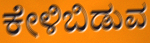
ಕೇಳಿಬಿಡುವ